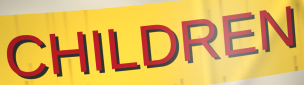
CHILDREN